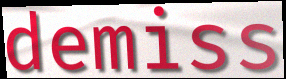
demiss